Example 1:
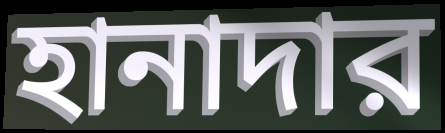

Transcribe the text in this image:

হানাদার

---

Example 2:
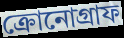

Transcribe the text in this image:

ক্রোনোগ্রাফ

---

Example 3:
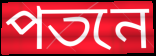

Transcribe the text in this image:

পতনে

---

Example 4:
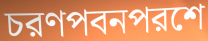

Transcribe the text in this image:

চরণপবনপরশে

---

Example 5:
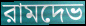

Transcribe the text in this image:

রামদেভ